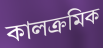
কালক্ৰমিক